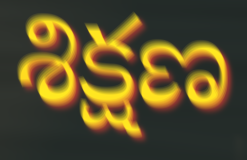
శిక్షణ